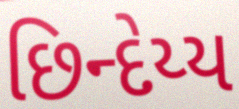
છિન્દેય્ય